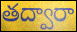
తద్వారా